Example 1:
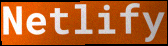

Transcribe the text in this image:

Netlify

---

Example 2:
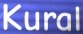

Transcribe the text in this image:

Kural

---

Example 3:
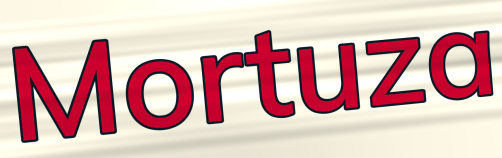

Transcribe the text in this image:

Mortuza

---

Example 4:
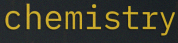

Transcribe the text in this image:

chemistry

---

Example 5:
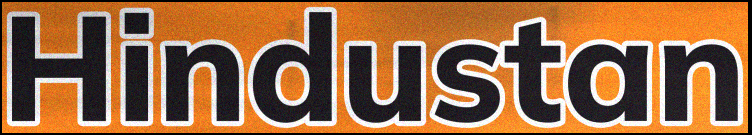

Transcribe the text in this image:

Hindustan